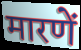
मारणें